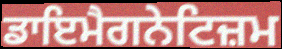
ਡਾਇਮੈਗਨੇਟਿਜ਼ਮ